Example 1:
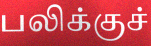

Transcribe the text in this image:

பலிக்குச்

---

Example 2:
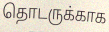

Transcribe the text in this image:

தொடருக்காக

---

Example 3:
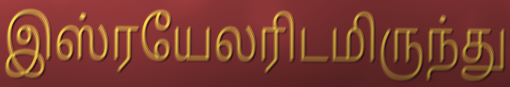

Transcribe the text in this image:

இஸ்ரயேலரிடமிருந்து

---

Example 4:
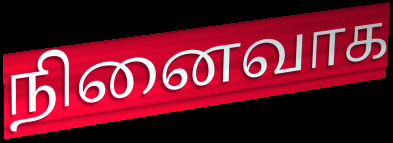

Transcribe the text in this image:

நினைவாக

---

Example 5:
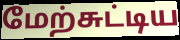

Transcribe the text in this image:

மேற்சுட்டிய